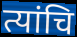
त्यांचि